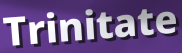
Trinitate